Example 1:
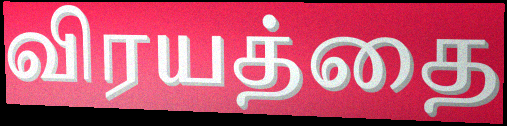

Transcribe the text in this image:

விரயத்தை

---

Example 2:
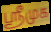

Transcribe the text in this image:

ஸ்ரீமுக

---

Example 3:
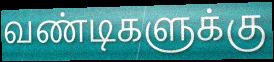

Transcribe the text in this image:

வண்டிகளுக்கு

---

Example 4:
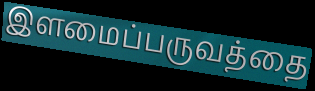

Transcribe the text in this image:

இளமைப்பருவத்தை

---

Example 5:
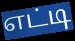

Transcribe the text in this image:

எட்டி